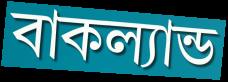
বাকল্যান্ড